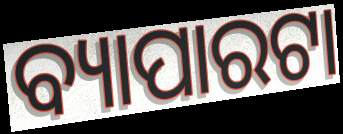
ବ୍ୟାପାରଟା